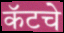
कॅटचे